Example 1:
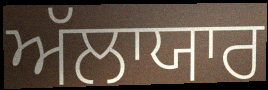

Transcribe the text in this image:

ਅੱਲਾਯਾਰ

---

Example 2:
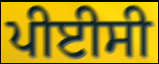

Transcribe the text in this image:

ਪੀਈਸੀ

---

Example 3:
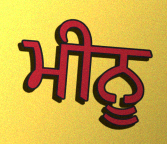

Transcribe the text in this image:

ਮੀਨੂ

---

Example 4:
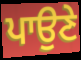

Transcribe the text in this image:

ਪਾਉਣੇ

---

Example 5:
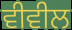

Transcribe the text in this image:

ਵੀਵੀਲ